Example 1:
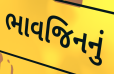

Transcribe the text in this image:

ભાવજિનનું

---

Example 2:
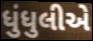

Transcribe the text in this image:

ધુંધુલીએ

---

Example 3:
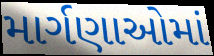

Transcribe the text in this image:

માર્ગણાઓમાં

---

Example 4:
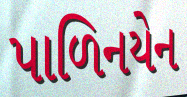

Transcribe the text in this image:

પાળિનયેન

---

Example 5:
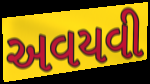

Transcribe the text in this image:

અવયવી